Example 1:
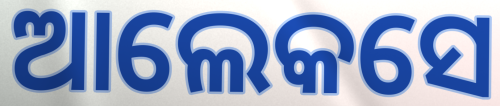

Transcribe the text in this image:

ଆଲେକସେ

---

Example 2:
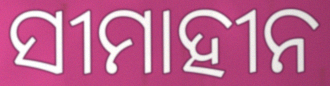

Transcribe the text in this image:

ସୀମାହୀନ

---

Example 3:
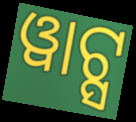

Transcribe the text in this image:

ୱାଟ୍ସ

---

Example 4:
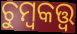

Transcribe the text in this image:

ଚୁମ୍ବକତ୍ତ୍ୱ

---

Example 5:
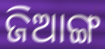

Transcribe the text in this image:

ଜିଆଙ୍ଗ